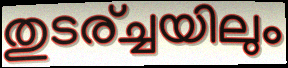
തുടര്ച്ചയിലും